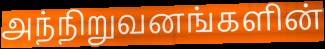
அந்நிறுவனங்களின்